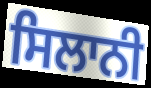
ਸਿਲਾਨੀ